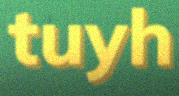
tuyh